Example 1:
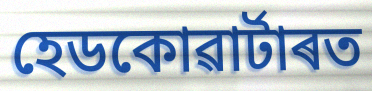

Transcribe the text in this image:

হেডকোৱাৰ্টাৰত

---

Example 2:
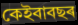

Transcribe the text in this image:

কেইবাবছৰ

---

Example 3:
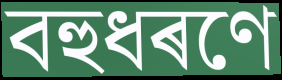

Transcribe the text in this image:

বহুধৰণে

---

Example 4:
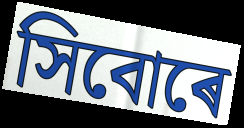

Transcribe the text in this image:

সিবোৰে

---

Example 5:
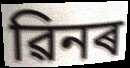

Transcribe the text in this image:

ৱিনৰ